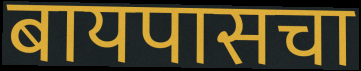
बायपासचा